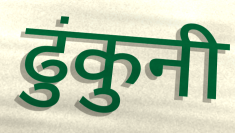
ढुंकुनी